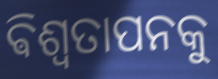
ଵିଶ୍ଵତାପନକୁ